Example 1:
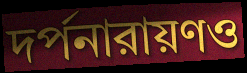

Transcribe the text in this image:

দর্পনারায়ণও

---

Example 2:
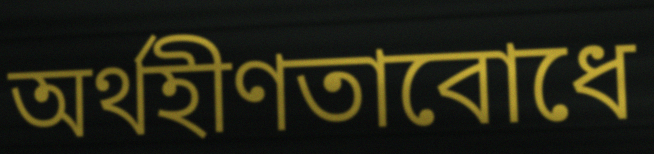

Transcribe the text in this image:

অর্থহীণতাবোধে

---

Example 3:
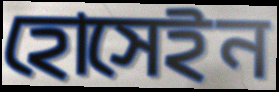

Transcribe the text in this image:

হোসেইন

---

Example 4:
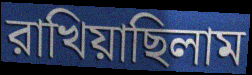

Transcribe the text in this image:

রাখিয়াছিলাম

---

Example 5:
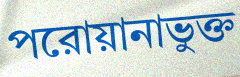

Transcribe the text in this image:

পরোয়ানাভুক্ত